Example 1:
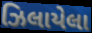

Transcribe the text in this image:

ઝિલાયેલા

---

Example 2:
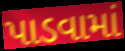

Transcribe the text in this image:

પાડવામાં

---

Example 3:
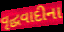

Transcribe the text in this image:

વૃદ્ધવાદીના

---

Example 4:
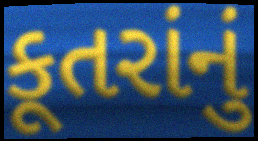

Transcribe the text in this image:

કૂતરાંનું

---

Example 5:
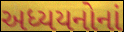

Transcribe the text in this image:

અધ્યયનોનાં